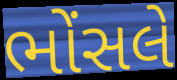
ભોંસલે